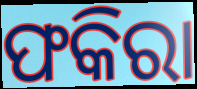
ଫକିରା